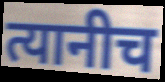
त्यानीच